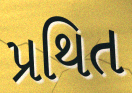
પ્રથિત